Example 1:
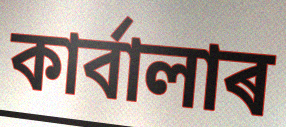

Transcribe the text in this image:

কাৰ্বালাৰ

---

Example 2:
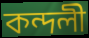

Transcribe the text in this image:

কন্দলী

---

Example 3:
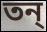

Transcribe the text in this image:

তন্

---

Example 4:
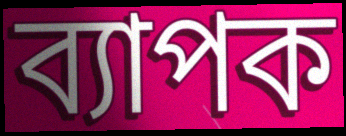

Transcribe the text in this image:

ব্যাপক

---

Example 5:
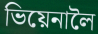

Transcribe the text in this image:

ভিয়েনালৈ